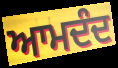
ਆਮਦੰਦ